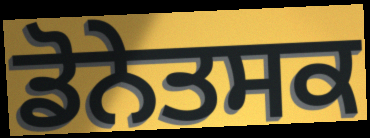
ਡੋਨੇਤਸਕ